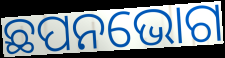
ଛପନଭୋଗ